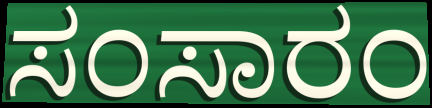
ಸಂಸಾರಂ